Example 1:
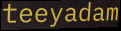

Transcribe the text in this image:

teeyadam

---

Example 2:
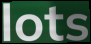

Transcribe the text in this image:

lots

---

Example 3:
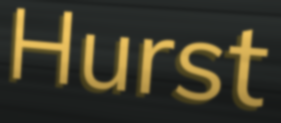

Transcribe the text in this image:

Hurst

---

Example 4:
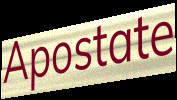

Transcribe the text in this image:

Apostate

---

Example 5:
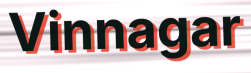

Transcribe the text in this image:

Vinnagar